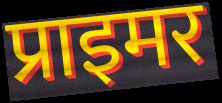
प्राइमर